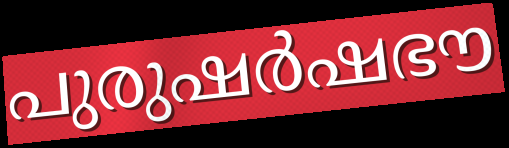
പുരുഷർഷഭൗ